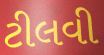
ટીલવી